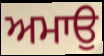
ਅਮਾਉ